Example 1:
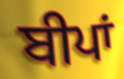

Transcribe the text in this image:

ਬੀਪਾਂ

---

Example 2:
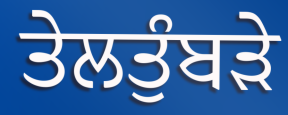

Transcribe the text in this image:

ਤੇਲਤੁੰਬੜੇ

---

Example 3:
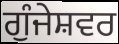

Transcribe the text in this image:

ਗੁੰਜੇਸ਼ਵਰ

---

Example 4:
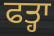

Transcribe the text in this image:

ਫਤ੍ਹਾ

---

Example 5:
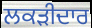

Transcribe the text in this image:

ਲਕੜੀਦਾਰ